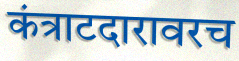
कंत्राटदारावरच